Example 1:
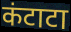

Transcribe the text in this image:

कंटाटा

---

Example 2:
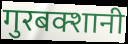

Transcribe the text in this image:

गुरबक्शानी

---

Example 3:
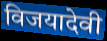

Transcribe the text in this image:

विजयादेवी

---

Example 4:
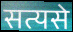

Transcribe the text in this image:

सत्यसे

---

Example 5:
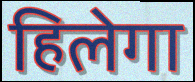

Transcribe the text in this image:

हिलेगा